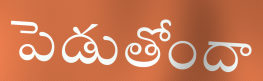
పెడుతోందా